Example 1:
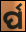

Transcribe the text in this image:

ର୍ପ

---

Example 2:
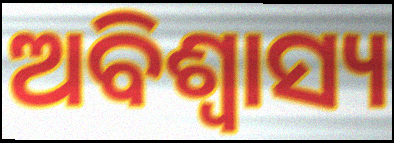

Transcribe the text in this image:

ଅବିଶ୍ୱାସ୍ୟ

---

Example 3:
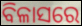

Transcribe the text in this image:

ବିଳାସରେ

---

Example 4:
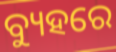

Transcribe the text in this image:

ବ୍ୟୁହରେ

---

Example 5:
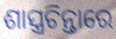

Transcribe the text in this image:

ଶାସ୍ତ୍ରଚିନ୍ତାରେ